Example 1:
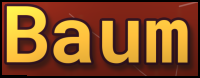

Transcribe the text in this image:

Baum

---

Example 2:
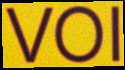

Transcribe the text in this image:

VOI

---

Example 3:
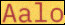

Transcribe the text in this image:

Aalo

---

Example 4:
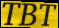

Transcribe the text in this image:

TBT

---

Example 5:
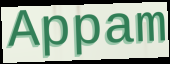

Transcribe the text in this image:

Appam